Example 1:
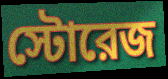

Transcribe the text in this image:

স্টোরেজ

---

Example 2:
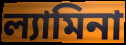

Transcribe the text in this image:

ল্যামিনা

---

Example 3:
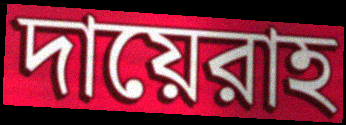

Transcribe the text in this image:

দায়েরাহ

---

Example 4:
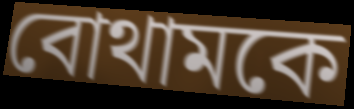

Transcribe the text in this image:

বোথামকে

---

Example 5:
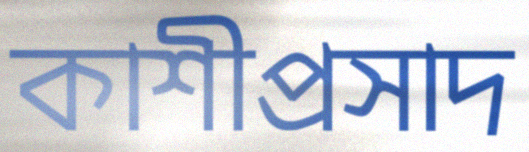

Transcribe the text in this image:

কাশীপ্রসাদ